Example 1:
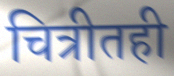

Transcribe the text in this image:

चित्रीतही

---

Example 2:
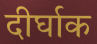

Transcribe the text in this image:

दीर्घाक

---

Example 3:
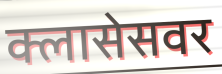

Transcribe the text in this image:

क्लासेसवर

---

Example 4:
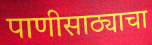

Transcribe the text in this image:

पाणीसाठ्याचा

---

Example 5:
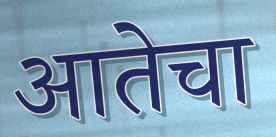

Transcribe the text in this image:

आतेचा